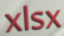
xlsx